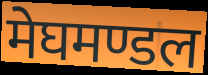
मेघमण्डल